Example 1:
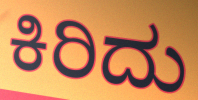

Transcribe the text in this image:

ಕಿರಿದು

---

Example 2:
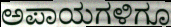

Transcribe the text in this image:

ಅಪಾಯಗಳಿಗೂ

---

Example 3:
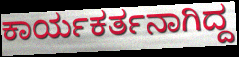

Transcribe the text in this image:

ಕಾರ್ಯಕರ್ತನಾಗಿದ್ದ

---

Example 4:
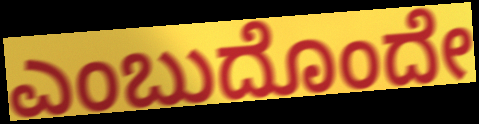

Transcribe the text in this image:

ಎಂಬುದೊಂದೇ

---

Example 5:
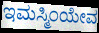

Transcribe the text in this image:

ಇಮಸ್ಮಿಂಯೇವ